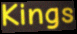
Kings